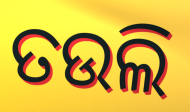
ତଉଲି